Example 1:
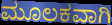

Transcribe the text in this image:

ಮೂಲಕವಾಗಿ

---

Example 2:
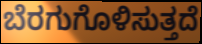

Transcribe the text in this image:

ಬೆರಗುಗೊಳಿಸುತ್ತದೆ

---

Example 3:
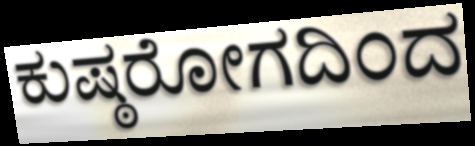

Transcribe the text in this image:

ಕುಷ್ಠರೋಗದಿಂದ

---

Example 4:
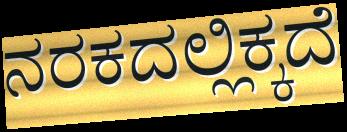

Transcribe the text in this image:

ನರಕದಲ್ಲಿಕ್ಕದೆ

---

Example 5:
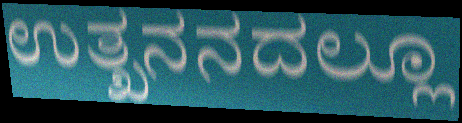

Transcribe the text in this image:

ಉತ್ಖನನದಲ್ಲೂ